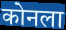
कोनला